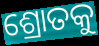
ଶ୍ରୋତକୁ